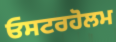
ਓਸਟਰਹੋਲਮ